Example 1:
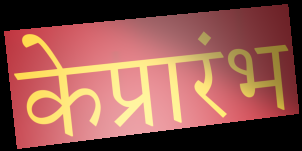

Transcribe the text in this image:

केप्रारंभ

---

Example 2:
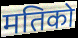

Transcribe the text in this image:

मतिको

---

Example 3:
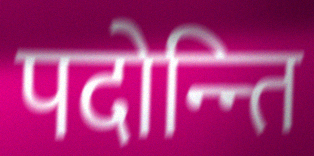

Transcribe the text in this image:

पदोन्न्ति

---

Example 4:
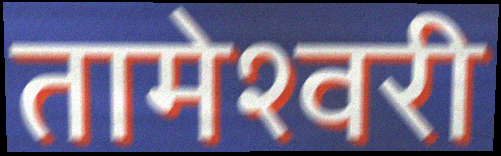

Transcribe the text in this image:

तामेश्वरी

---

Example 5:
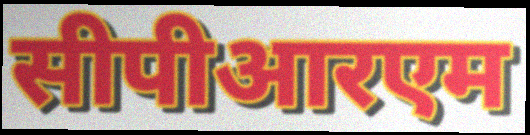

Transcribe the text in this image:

सीपीआरएम